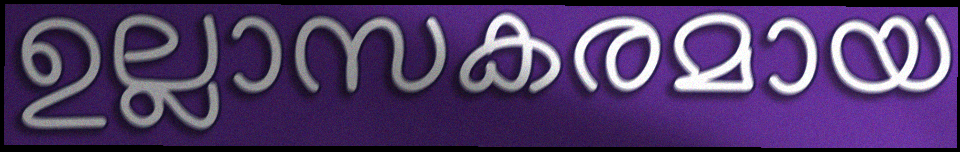
ഉല്ലാസകരമായ